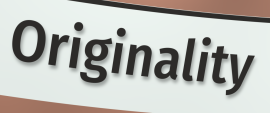
Originality